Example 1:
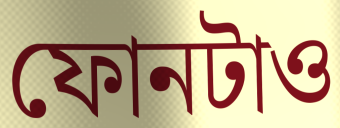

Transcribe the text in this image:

ফোনটাও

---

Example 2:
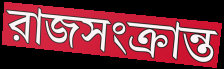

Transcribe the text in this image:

রাজসংক্রান্ত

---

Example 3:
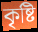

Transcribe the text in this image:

কৃষ্টি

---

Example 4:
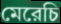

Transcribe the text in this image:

মেরেচি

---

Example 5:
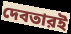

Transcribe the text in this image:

দেবতারই